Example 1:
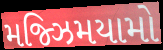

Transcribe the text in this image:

મજ્ઝિમયામો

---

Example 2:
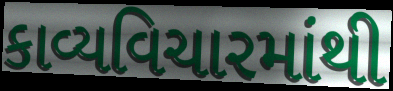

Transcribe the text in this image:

કાવ્યવિચારમાંથી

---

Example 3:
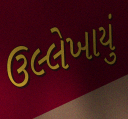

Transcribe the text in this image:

ઉલ્લેખાયું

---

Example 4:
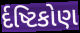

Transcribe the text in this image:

ર્દષ્ટિકોણ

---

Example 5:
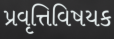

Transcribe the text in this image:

પ્રવૃત્તિવિષયક